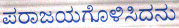
ಪರಾಜಯಗೊಳಿಸಿದನು